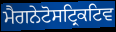
ਮੈਗਨੇਟੋਸਟ੍ਰਿਕਟਿਵ